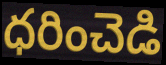
ధరించెడి